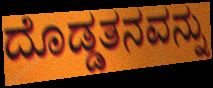
ದೊಡ್ಡತನವನ್ನು